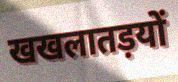
खखलातड़यों